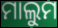
ମାଲୁମ